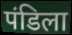
पंडिला